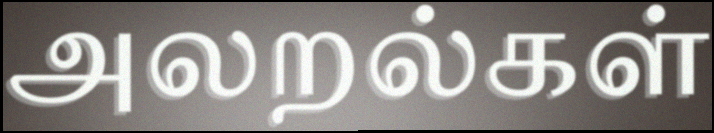
அலறல்கள்